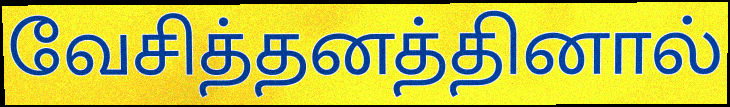
வேசித்தனத்தினால்